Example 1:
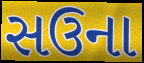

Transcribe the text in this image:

સઉના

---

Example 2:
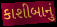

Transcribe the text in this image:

કાશીબાનું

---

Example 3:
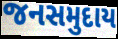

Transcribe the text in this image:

જનસમુદાય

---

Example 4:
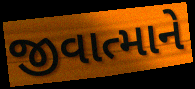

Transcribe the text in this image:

જીવાત્માને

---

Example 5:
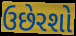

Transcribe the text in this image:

ઉછેરશો